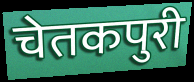
चेतकपुरी